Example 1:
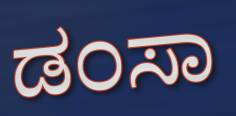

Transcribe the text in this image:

ಡಂಸಾ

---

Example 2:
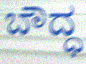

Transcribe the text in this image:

ಬೌದ್ಧ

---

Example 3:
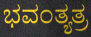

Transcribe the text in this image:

ಭವಂತ್ಯತ್ರ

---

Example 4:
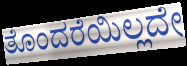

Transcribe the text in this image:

ತೊಂದರೆಯಿಲ್ಲದೇ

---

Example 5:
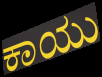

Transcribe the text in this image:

ಕಾಯು